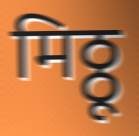
मिठ्ठू